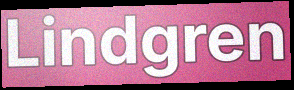
Lindgren